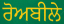
ਰੋਅਬੀਲੇ